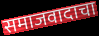
समाजवादाचा